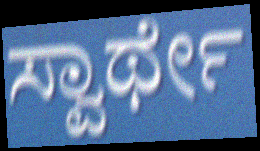
ಸ್ವಾರ್ಥೇ